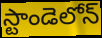
స్టాండెలోన్